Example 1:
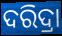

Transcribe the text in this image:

ଦରିଦ୍ରା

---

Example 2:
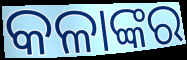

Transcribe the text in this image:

କଳାଙ୍କର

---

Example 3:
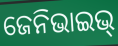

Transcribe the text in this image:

ଜେନିଭାଇଭ୍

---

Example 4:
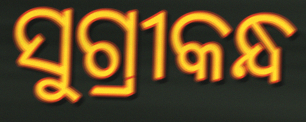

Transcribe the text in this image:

ସୁଗ୍ରୀକନ୍ଧ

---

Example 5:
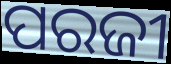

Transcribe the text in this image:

ପରଜୀ